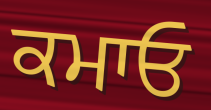
ਕਮਾਓ